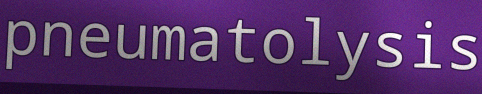
pneumatolysis